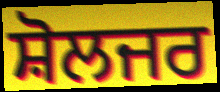
ਸ਼ੋਲਜਰ